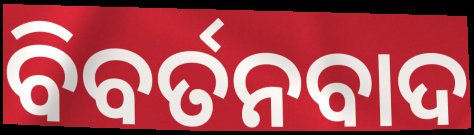
ବିବର୍ତନବାଦ